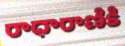
రాధారాణికి